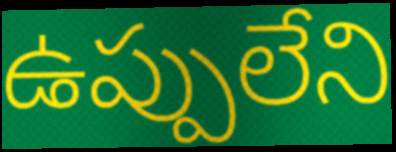
ఉప్పులేని